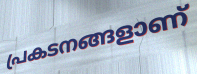
പ്രകടനങ്ങളാണ്